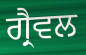
ਗ੍ਰੈਵਲ